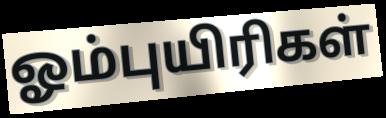
ஓம்புயிரிகள்